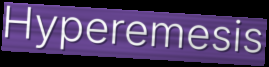
Hyperemesis